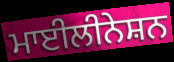
ਮਾਈਲੀਨੇਸ਼ਨ